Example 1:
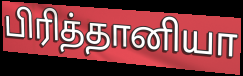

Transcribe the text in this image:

பிரித்தானியா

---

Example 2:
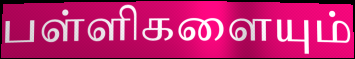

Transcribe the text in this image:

பள்ளிகளையும்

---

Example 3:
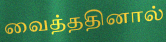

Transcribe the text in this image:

வைத்ததினால்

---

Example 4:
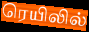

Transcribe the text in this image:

ரெயிலில்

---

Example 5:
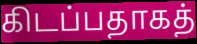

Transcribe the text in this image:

கிடப்பதாகத்